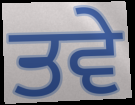
ਤਵੇ